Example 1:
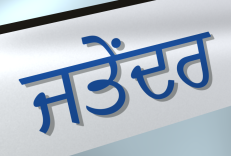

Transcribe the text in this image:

ਜਤੇਂਦਰ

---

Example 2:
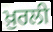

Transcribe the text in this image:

ਖ਼ੁਰਲੀ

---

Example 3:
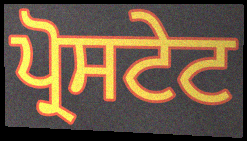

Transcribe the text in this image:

ਪ੍ਰੋਸਟੇਟ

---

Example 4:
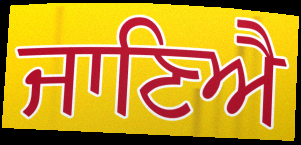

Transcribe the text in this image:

ਜਾਣਿਐ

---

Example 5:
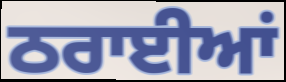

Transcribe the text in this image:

ਠਰਾਈਆਂ